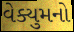
વેક્યુમનો